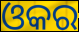
ଓକର